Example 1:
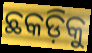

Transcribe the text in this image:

ଛକଡ଼ିକୁ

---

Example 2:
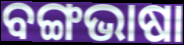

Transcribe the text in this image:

ବଙ୍ଗଭାଷା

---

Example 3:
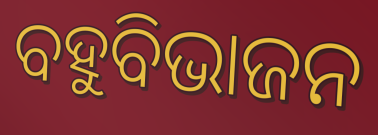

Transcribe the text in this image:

ବହୁବିଭାଜନ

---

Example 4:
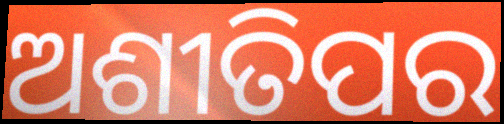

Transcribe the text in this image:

ଅଶୀତିପର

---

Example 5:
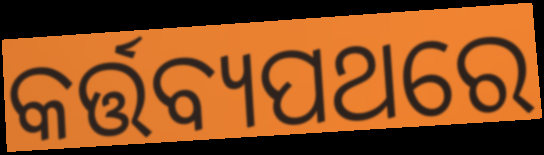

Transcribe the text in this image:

କର୍ତ୍ତବ୍ୟପଥରେ